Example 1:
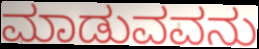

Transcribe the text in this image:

ಮಾಡುವವನು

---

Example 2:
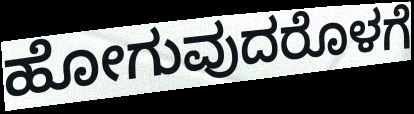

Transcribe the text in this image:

ಹೋಗುವುದರೊಳಗೆ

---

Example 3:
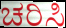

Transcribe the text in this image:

ಚರಿಸಿ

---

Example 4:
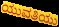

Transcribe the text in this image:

ಯುವತಿಯು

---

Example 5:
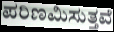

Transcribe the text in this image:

ಪರಿಣಮಿಸುತ್ತವೆ